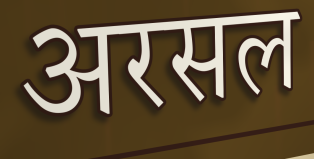
अरसल